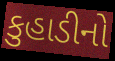
કુહાડીનો